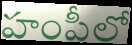
హంపీలో